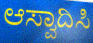
ಆಸ್ವಾದಿಸಿ